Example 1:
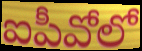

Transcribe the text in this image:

ఐపీవోలో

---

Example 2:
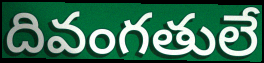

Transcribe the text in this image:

దివంగతులే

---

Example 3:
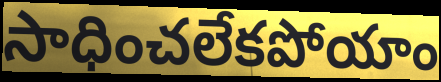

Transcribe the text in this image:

సాధించలేకపోయాం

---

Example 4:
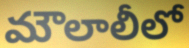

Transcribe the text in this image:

మౌలాలీలో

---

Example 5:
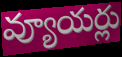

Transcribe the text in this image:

వ్యూయర్లు